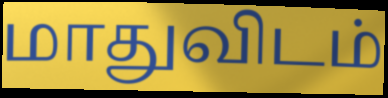
மாதுவிடம்